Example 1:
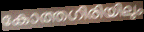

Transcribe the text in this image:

കോത്തഗിരിയിലും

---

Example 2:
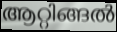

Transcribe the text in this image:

ആറ്റിങ്ങൽ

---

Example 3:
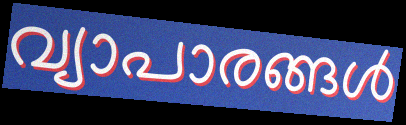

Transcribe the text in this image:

വ്യാപാരങ്ങൾ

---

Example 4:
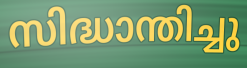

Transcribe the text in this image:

സിദ്ധാന്തിച്ചു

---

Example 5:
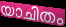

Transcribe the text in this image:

യാചിതം